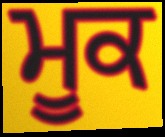
ਮੂਕ